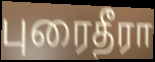
புரைதீரா